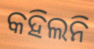
କହିଲନି